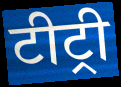
टीट्री